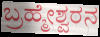
ಬ್ರಹ್ಮೇಶ್ವರನ